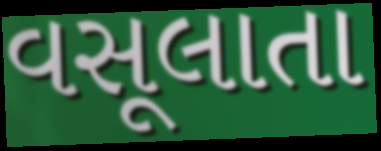
વસૂલાતા